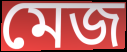
মেজ